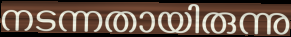
നടന്നതായിരുന്നു